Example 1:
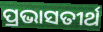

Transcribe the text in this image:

ପ୍ରଭାସତୀର୍ଥ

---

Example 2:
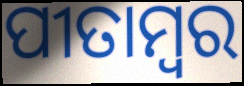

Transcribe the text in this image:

ପୀତାମ୍ବର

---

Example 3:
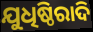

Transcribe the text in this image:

ଯୁଧିଷ୍ଠିରାଦି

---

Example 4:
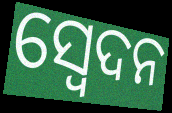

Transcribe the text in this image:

ସ୍ଵେଦନ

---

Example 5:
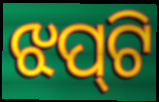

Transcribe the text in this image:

ଝପ୍‌ଟି